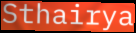
Sthairya